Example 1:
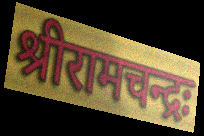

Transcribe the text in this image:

श्रीरामचन्द्रः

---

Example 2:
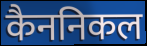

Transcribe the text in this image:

कैननिकल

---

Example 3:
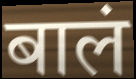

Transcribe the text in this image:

बालं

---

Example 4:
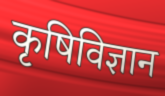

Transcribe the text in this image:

कृषिविज्ञान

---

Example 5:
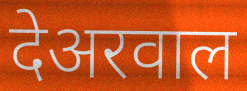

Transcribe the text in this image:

देअरवाल